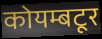
कोयम्‍बटूर